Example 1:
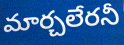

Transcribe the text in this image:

మార్చలేరనీ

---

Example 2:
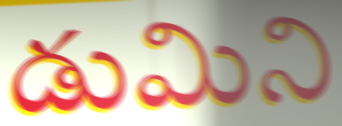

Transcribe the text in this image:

డుమిని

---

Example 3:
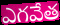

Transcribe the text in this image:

ఎగవేత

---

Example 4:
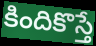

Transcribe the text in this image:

కిందికొస్తే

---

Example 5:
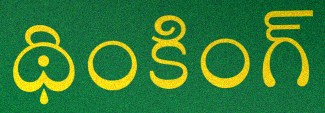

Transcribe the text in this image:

థింకింగ్